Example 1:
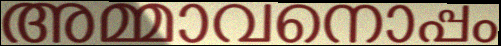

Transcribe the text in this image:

അമ്മാവനൊപ്പം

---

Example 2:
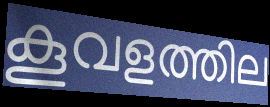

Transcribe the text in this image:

കൂവളത്തില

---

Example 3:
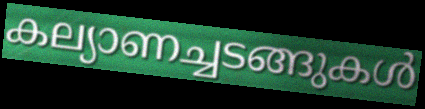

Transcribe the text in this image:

കല്യാണച്ചടങ്ങുകൾ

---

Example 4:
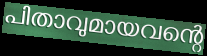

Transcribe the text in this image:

പിതാവുമായവന്റെ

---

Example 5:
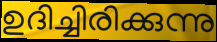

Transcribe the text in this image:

ഉദിച്ചിരിക്കുന്നു